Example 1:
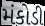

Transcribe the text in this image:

મંકોડી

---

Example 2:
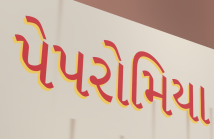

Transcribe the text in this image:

પેપરોમિયા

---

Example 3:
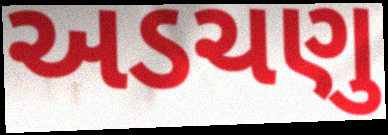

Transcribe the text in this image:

અડચણુ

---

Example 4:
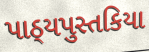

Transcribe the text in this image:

પાઠ્યપુસ્તકિયા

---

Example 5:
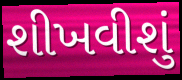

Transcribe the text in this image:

શીખવીશું